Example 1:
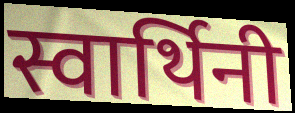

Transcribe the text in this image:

स्वार्थिनी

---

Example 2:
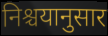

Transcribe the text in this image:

निश्चयानुसार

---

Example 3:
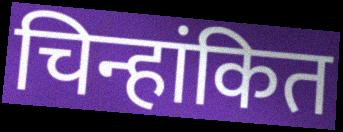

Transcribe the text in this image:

चिन्हांकित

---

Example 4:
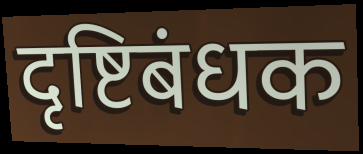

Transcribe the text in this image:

दृष्टिबंधक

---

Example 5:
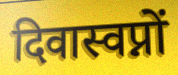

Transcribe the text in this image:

दिवास्वप्नों